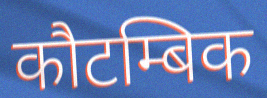
कौटम्बिक